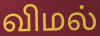
விமல்